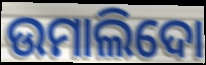
ଉମାଲିଦୋ